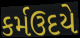
કર્મઉદયે